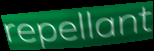
repellant